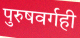
पुरुषवर्गही